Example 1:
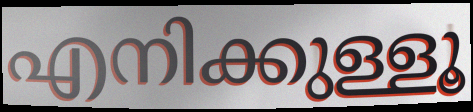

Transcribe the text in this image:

എനിക്കുള്ളൂ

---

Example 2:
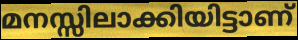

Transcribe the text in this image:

മനസ്സിലാക്കിയിട്ടാണ്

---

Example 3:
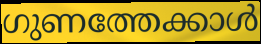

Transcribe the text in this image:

ഗുണത്തേക്കാൾ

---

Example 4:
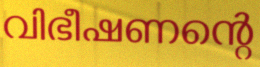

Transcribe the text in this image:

വിഭീഷണന്റെ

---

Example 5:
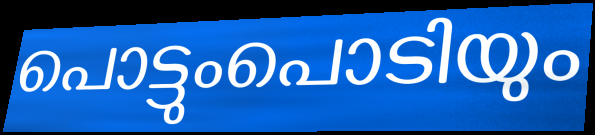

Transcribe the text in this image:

പൊട്ടുംപൊടിയും